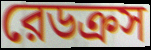
রেডক্রস